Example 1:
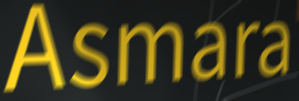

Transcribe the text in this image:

Asmara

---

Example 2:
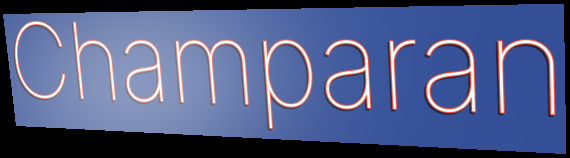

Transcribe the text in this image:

Champaran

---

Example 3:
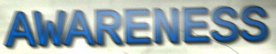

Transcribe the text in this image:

AWARENESS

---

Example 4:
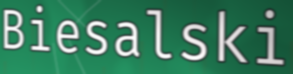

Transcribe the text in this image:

Biesalski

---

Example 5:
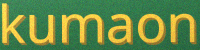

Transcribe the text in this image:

kumaon